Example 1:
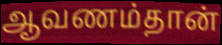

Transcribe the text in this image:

ஆவணம்தான்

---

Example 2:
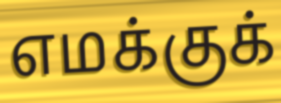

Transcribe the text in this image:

எமக்குக்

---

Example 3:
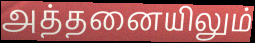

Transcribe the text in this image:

அத்தனையிலும்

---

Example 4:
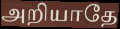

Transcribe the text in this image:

அறியாதே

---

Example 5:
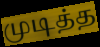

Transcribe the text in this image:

முடித்த